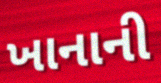
ખાનાની